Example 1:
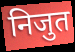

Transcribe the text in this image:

निजुत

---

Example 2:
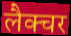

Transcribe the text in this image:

लैक्चर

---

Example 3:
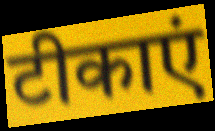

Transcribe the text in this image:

टीकाएं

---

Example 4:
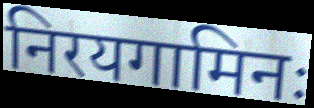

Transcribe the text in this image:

निरयगामिनः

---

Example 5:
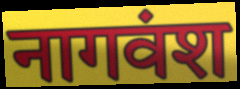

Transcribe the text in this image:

नागवंश